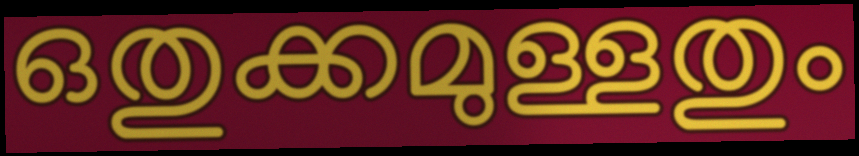
ഒതുക്കമുള്ളതും